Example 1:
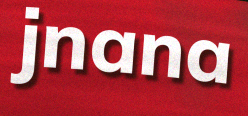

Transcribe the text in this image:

jnana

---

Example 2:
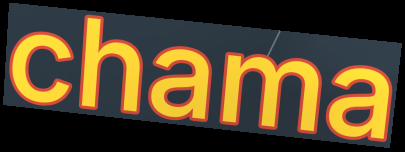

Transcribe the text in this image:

chama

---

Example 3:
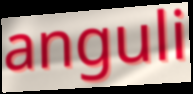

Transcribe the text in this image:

anguli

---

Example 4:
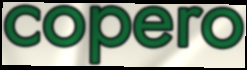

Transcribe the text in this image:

copero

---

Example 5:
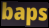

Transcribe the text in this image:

baps